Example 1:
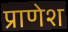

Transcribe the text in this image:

प्राणेश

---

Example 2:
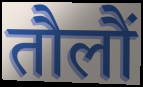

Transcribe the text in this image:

तौलौं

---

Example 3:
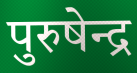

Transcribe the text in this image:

पुरुषेन्द्र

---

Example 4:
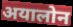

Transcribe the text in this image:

अयालोन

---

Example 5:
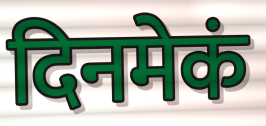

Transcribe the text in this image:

दिनमेकं